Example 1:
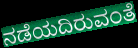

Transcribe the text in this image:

ನಡೆಯದಿರುವಂತೆ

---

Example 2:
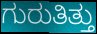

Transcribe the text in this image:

ಗುರುತಿತ್ತು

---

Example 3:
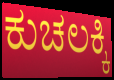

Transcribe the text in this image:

ಕುಚಲಕ್ಕಿ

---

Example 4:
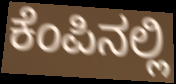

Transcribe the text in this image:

ಕೆಂಪಿನಲ್ಲಿ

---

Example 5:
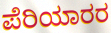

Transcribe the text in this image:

ಪೆರಿಯಾರರ